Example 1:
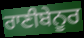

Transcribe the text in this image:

ਰਾਣੀਬੇਨੂਰ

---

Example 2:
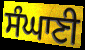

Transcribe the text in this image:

ਸੰਘਾਣੀ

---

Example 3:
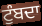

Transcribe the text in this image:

ਟੁੰਬਦਾ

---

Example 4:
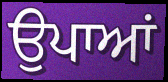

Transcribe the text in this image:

ਉਪਾਆਂ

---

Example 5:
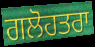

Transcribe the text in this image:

ਗਲੋਹਤਰਾ